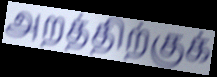
அறத்திற்குக்